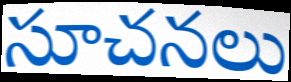
సూచనలు